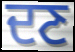
ਦਣ